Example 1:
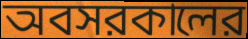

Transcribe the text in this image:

অবসরকালের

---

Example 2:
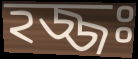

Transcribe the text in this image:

হজ্জঃ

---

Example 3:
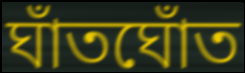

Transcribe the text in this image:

ঘাঁতঘোঁত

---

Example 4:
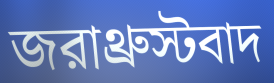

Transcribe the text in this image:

জরাথ্রুস্টবাদ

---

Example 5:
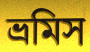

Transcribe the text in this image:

ভ্রমিস